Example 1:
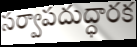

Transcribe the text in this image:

సర్వాపదుద్ధారక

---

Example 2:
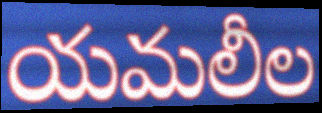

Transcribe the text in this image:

యమలీల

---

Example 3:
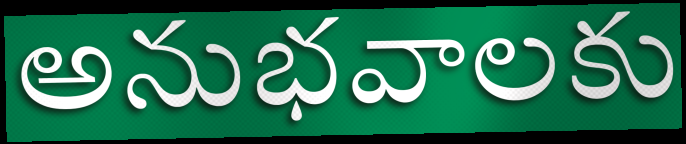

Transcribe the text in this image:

అనుభవాలకు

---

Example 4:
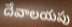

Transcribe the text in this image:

దేవాలయపు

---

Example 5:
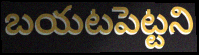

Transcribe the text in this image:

బయటపెట్టని